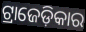
ଟ୍ରାଜେଡ଼ିକାର